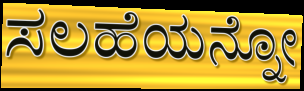
ಸಲಹೆಯನ್ನೋ